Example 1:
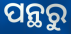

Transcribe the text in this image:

ପନ୍ଥରୁ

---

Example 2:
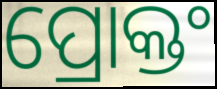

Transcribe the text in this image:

ପ୍ରୋକ୍ତଂ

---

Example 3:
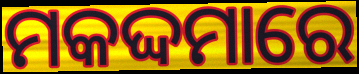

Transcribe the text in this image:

ମକଦ୍ଦମାରେ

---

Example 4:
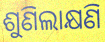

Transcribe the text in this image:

ଶୁଣିଲାକ୍ଷଣି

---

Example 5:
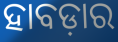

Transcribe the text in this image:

ହାବଡ଼ାର